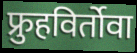
फ्रुहविर्तोवा